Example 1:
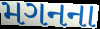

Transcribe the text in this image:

મગનના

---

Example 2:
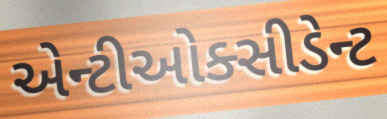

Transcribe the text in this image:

એન્ટીઓક્સીડેન્ટ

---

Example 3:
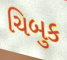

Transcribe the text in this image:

ચિબુક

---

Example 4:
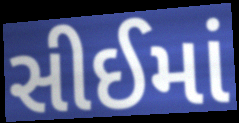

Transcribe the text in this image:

સીઈમાં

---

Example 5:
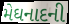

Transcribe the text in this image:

મેઘનાદની